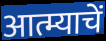
आत्म्याचें